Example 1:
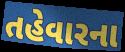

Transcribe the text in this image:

તહેવારના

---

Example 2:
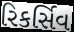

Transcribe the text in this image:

રિકર્સિવ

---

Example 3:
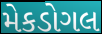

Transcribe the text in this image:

મેકડોગલ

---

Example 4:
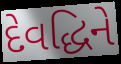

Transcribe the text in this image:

દેવદ્ધિને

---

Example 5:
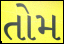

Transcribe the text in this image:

તોમ